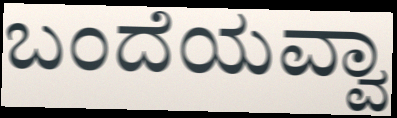
ಬಂದೆಯವ್ವಾ